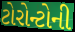
ટોરોન્ટોની